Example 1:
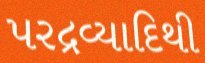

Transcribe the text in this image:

પરદ્રવ્યાદિથી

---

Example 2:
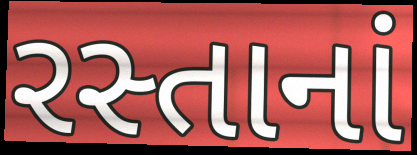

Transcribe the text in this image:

રસ્તાનાં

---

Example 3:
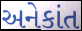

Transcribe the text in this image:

અનેકાંત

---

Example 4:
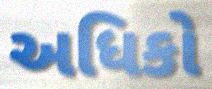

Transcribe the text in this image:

અધિકો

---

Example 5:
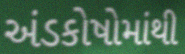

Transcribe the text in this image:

અંડકોષોમાંથી